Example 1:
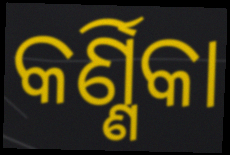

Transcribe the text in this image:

କର୍ଣ୍ଣିକା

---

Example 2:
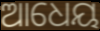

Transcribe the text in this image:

ଆଧେୟ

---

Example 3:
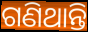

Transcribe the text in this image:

ଗଣିଥାନ୍ତି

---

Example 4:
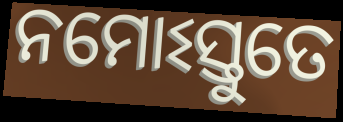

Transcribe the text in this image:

ନମୋଽସ୍ତୁତେ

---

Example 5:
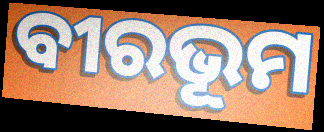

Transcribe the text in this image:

ବୀରଭୂମ